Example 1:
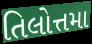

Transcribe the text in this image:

તિલોત્તમા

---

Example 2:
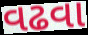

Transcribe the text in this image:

વઢવા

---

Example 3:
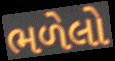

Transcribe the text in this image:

ભળેલો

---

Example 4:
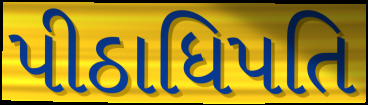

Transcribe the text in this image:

પીઠાધિપતિ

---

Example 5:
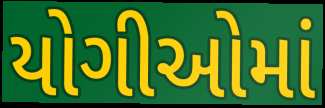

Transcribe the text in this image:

યોગીઓમાં